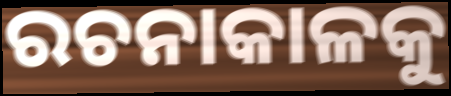
ରଚନାକାଳକୁ